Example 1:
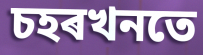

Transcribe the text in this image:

চহৰখনতে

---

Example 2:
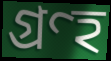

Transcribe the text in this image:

গ্ৰণ্হ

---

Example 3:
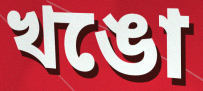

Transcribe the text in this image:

খঙো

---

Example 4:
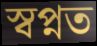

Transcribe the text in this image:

স্বপ্নত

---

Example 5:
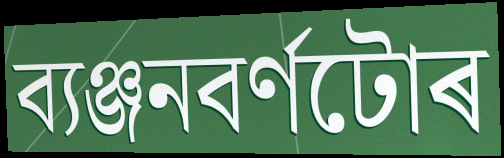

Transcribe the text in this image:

ব্যঞ্জনবৰ্ণটোৰ